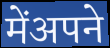
मेंअपने